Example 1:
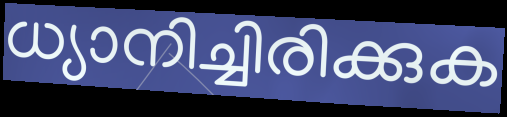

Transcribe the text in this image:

ധ്യാനിച്ചിരിക്കുക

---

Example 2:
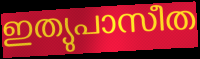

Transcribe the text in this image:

ഇത്യുപാസീത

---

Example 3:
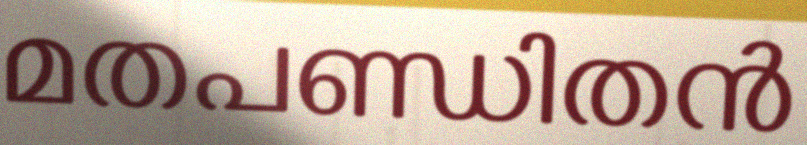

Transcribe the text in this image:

മതപണ്ഡിതൻ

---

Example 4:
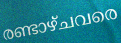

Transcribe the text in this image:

രണ്ടാഴ്ചവരെ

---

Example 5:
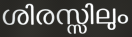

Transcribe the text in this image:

ശിരസ്സിലും